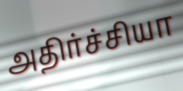
அதிர்ச்சியா